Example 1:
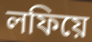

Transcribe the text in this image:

লফিয়ে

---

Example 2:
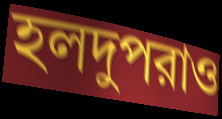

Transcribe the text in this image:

হলদুপরাও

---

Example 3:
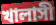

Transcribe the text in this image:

খালাসী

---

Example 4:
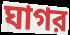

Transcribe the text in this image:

ঘাগর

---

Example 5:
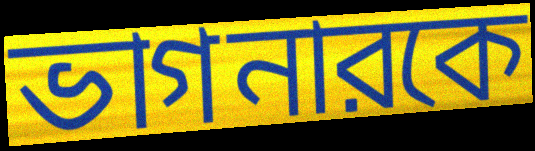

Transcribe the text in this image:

ভাগনারকে